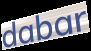
dabar